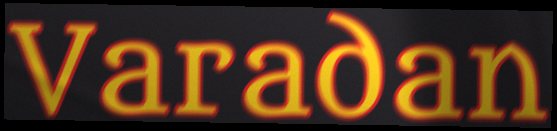
Varadan